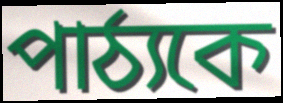
পাঠ্যকে